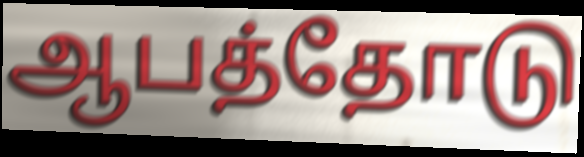
ஆபத்தோடு